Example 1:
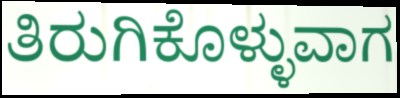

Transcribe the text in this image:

ತಿರುಗಿಕೊಳ್ಳುವಾಗ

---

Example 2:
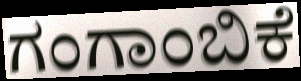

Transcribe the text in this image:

ಗಂಗಾಂಬಿಕೆ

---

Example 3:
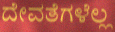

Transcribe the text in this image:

ದೇವತೆಗಳೆಲ್ಲ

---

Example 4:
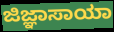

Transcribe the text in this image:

ಜಿಜ್ಞಾಸಾಯಾ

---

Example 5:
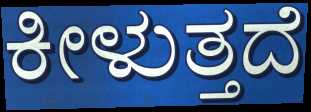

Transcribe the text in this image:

ಕೀಳುತ್ತದೆ